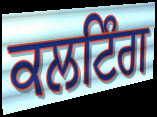
ਕਲਟਿੰਗ